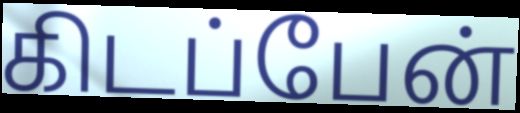
கிடப்பேன்